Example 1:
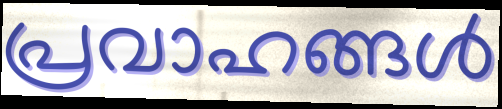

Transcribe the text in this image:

പ്രവാഹങ്ങൾ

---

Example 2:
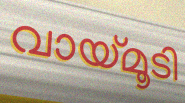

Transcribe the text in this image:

വായ്മൂടി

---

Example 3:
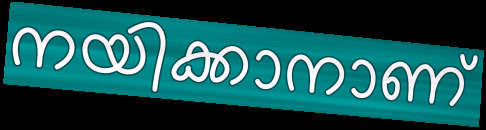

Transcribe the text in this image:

നയിക്കാനാണ്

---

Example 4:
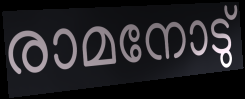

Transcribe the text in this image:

രാമനോടു്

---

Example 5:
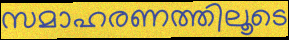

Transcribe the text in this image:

സമാഹരണത്തിലൂടെ